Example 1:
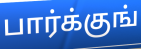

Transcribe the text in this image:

பார்க்குங்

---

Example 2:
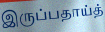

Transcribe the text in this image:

இருப்பதாய்த்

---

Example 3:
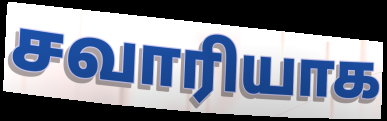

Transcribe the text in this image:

சவாரியாக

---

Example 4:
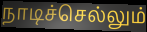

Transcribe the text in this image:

நாடிச்செல்லும்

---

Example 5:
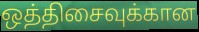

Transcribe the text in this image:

ஒத்திசைவுக்கான